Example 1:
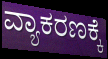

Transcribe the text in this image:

ವ್ಯಾಕರಣಕ್ಕೆ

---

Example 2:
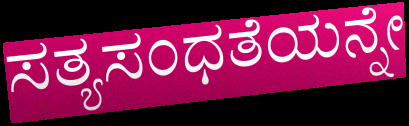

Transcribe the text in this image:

ಸತ್ಯಸಂಧತೆಯನ್ನೇ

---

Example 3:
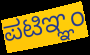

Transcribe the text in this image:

ಪಟಿಞ್ಞಂ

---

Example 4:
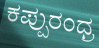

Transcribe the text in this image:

ಕಪ್ಪುರಂಧ್ರ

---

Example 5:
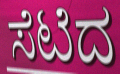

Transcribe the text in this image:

ಸೆಟೆದ